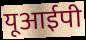
यूआईपी